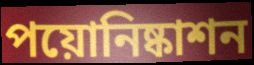
পয়োনিষ্কাশন